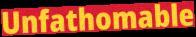
Unfathomable